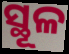
ସ୍ଥୂଳ